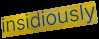
insidiously